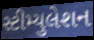
સ્ટીમ્યુલેશન